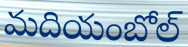
మదియంబోల్